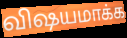
விஷயமாக்க